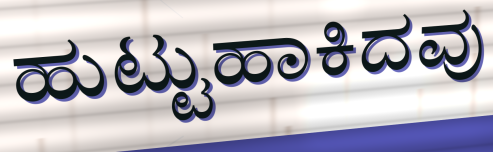
ಹುಟ್ಟುಹಾಕಿದವು